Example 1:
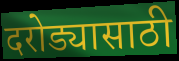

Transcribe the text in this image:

दरोड्यासाठी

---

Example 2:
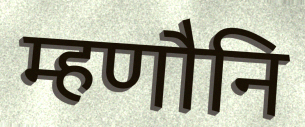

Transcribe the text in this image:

म्हणौनि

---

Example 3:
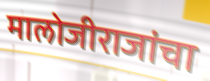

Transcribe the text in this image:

मालोजीराजांचा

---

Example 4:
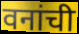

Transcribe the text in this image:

वनांची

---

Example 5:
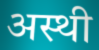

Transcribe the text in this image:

अस्थी